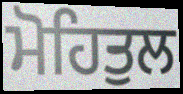
ਮੋਹਿਤੁਲ